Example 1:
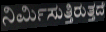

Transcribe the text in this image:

ನಿರ್ಮಿಸುತ್ತಿರುತ್ತದೆ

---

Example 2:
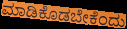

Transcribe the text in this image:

ಮಾಡಿಕೊಡಬೇಕೆಂದು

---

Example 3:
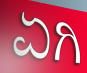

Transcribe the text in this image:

ಏಗಿ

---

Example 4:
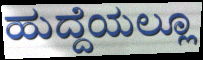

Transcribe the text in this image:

ಹುದ್ದೆಯಲ್ಲೂ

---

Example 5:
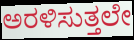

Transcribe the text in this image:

ಅರಳಿಸುತ್ತಲೇ